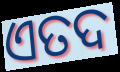
ଏତଦ